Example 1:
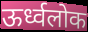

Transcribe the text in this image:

ऊर्ध्वलोक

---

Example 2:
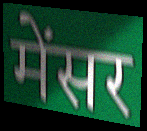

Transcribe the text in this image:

मेंसर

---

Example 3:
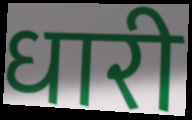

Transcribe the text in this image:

धारी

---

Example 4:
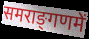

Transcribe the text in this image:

समराङ्गणमें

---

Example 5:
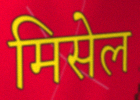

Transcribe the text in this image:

मिसेल